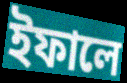
ইফালে